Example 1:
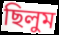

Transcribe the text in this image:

ছিলুম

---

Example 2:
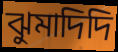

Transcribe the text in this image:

ঝুমাদিদি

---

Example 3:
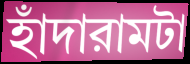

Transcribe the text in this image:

হাঁদারামটা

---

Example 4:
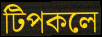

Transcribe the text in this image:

টিপকলে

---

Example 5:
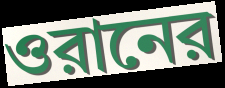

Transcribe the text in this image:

ওরানের